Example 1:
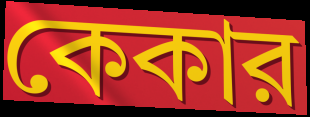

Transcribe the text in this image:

কেকার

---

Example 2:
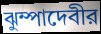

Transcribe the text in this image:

ঝুম্পাদেবীর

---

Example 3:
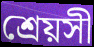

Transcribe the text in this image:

শ্রেয়সী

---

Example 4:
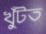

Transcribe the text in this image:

খুঁটত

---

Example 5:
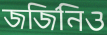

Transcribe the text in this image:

জর্জিনিও